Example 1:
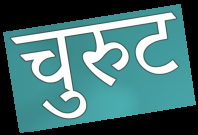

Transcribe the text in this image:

चुरुट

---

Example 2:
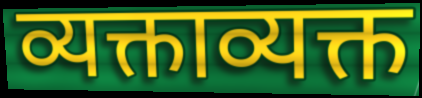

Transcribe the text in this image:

व्यक्ताव्यक्त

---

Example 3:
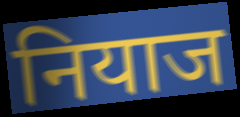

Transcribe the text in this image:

नियाज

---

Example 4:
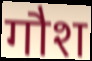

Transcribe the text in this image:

गौश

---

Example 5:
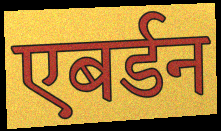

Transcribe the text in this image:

एबर्डन